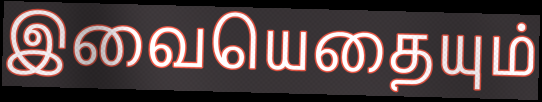
இவையெதையும்